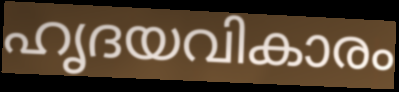
ഹൃദയവികാരം